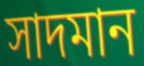
সাদমান